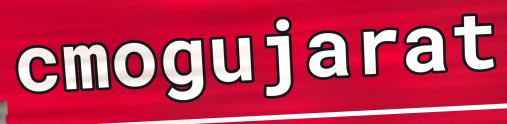
cmogujarat